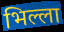
भिल्ला